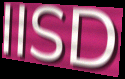
IISD